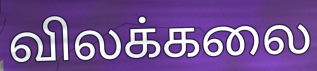
விலக்கலை